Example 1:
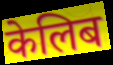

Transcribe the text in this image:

केलिब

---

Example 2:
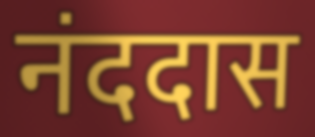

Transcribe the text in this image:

नंददास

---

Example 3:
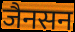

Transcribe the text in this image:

जैनसन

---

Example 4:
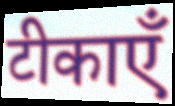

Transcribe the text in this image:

टीकाएँ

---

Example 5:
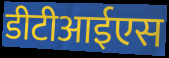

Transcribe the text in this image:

डीटीआईएस